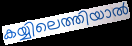
കയ്യിലെത്തിയാൽ